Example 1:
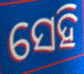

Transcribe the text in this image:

ସେହି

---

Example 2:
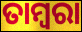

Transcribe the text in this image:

ତାମ୍ବରା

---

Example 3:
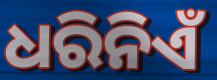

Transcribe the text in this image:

ଧରିନିଏଁ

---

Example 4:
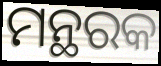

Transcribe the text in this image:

ମନ୍ଥରକ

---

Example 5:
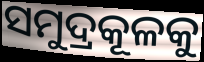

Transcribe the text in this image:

ସମୁଦ୍ରକୂଳକୁ